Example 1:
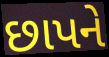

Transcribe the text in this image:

છાપને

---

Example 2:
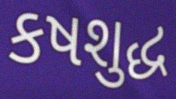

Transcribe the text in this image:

કષશુદ્ધ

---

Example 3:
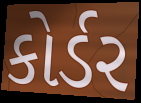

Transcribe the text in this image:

કોર્ડર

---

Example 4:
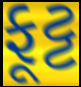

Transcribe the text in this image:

ફૂટ્ટ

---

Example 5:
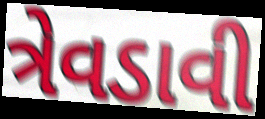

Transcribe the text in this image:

ત્રેવડાવી